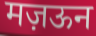
मज़ऊन